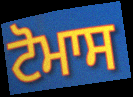
ਟੋਮਾਸ